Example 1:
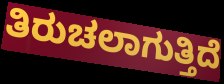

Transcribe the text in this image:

ತಿರುಚಲಾಗುತ್ತಿದೆ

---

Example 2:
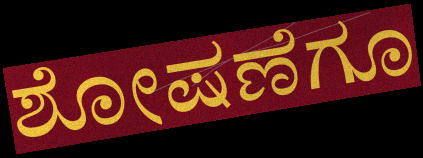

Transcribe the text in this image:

ಶೋಷಣೆಗೂ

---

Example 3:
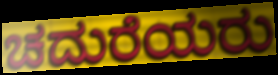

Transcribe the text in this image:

ಚದುರೆಯರು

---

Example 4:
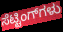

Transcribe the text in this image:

ಸೆಟ್ಟಿಂಗ್‌ಗಳು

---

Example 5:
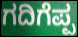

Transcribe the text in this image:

ಗದಿಗೆಪ್ಪ